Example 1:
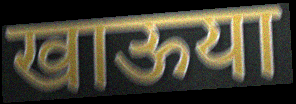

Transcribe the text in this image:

खाऊया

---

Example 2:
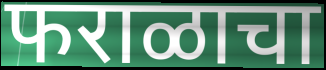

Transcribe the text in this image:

फराळाचा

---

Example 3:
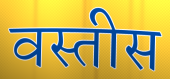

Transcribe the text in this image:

वस्तीस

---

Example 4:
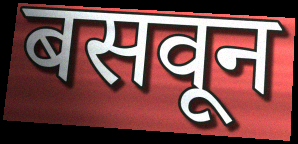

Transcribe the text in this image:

बसवून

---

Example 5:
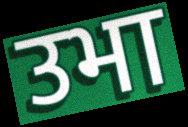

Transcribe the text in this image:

उभा